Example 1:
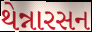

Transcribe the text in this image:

થેન્નારસન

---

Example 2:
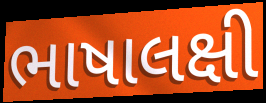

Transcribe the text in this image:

ભાષાલક્ષી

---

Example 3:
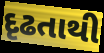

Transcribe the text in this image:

દૃઢતાથી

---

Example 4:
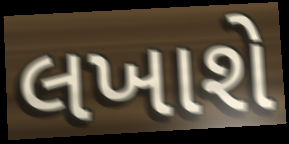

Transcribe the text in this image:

લખાશે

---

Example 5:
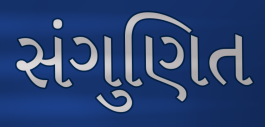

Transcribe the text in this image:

સંગુણિત